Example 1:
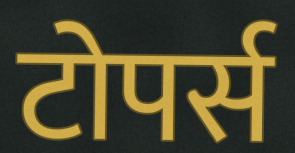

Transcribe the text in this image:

टोपर्स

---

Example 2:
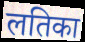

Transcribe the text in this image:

लतिका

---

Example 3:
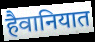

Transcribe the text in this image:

हैवानियात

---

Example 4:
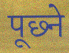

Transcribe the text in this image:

पूछ्ने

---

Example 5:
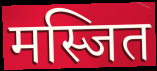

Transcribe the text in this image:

मस्जित